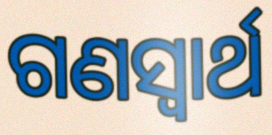
ଗଣସ୍ୱାର୍ଥ